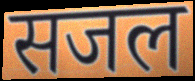
सजल